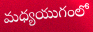
మధ్యయుగంలో